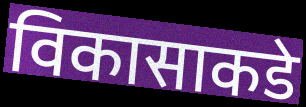
विकासाकडे